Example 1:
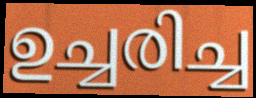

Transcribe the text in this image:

ഉച്ചരിച്ച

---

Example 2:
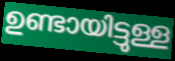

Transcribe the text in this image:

ഉണ്ടായിട്ടുള്ള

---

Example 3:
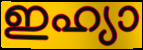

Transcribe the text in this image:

ഇഹ്യാ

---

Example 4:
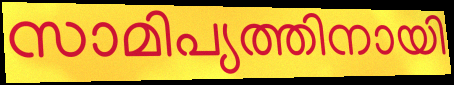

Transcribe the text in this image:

സാമിപ്യത്തിനായി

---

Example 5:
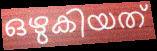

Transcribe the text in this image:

ഒഴുകിയത്